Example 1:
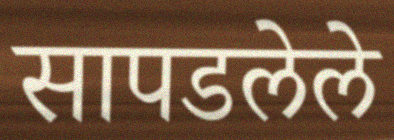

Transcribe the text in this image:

सापडलेले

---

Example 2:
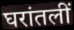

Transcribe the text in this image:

घरांतलीं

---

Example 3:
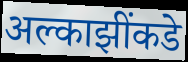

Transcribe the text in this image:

अल्काझींकडे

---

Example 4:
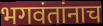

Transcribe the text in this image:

भगवंतांनाच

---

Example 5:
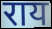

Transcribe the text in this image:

राय